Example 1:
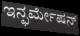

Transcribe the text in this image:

ಇನ್ಫರ್ಮೇಷನ್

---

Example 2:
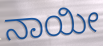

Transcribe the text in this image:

ನಾಯೀ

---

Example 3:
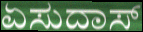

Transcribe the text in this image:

ಏಸುದಾಸ್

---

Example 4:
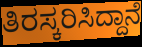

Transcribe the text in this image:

ತಿರಸ್ಕರಿಸಿದ್ದಾನೆ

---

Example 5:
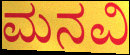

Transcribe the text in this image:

ಮನವಿ